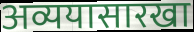
अव्ययासारखा